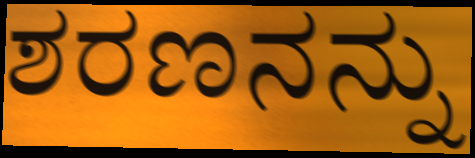
ಶರಣನನ್ನು